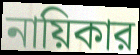
নায়িকার